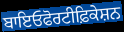
ਬਾਇਓਫੋਰਟੀਫ਼ਿਕੇਸ਼ਨ